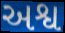
અશ્વ